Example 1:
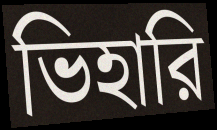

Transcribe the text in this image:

ভিহারি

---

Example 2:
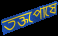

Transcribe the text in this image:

তক্তপোষে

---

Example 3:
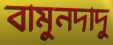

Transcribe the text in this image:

বামুনদাদু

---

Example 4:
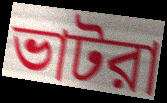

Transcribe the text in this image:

ভাটরা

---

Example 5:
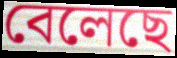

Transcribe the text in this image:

বেলেছে